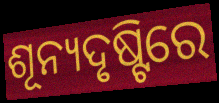
ଶୂନ୍ୟଦୃଷ୍ଟିରେ